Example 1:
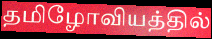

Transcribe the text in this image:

தமிழோவியத்தில்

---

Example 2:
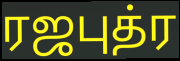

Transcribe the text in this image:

ரஜபுத்ர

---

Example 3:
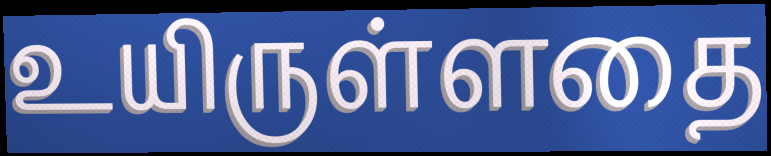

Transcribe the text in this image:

உயிருள்ளதை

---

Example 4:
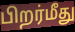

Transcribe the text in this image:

பிறர்மீது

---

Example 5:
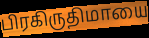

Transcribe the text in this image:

பிரகிருதிமாயை